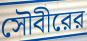
সৌবীরের